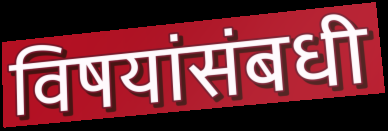
विषयांसंबधी